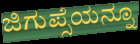
ಜಿಗುಪ್ಸೆಯನ್ನೂ